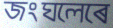
জংঘলেৰে